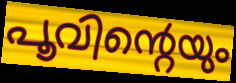
പൂവിന്റെയും